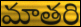
మాతరి